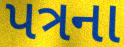
પત્રના